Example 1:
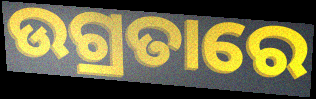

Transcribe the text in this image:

ଉଗ୍ରତାରେ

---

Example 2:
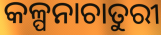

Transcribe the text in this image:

କଳ୍ପନାଚାତୁରୀ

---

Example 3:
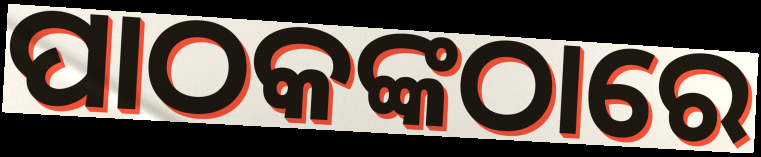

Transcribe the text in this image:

ପାଠକଙ୍କଠାରେ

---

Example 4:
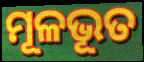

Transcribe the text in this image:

ମୂଳଭୂତ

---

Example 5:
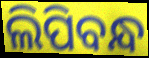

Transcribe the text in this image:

ଲିପିବନ୍ଧ